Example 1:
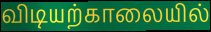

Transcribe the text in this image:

விடியற்காலையில்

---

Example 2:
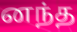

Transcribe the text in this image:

னந்த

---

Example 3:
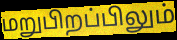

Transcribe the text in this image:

மறுபிறப்பிலும்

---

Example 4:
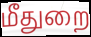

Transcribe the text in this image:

மீதுறை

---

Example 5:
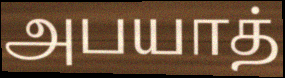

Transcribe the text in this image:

அபயாத்